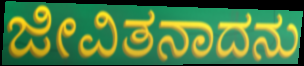
ಜೀವಿತನಾದನು